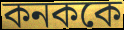
কনককে